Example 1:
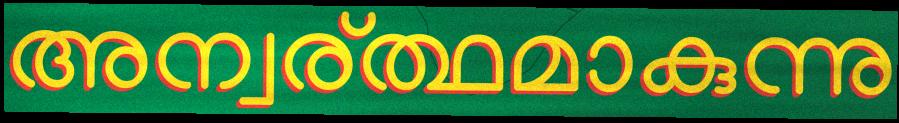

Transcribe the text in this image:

അന്വര്ത്ഥമാകുന്നു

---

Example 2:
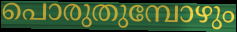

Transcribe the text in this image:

പൊരുതുമ്പോഴും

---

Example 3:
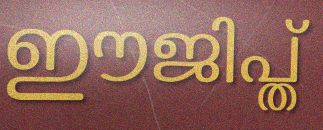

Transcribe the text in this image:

ഈജിപ്ത്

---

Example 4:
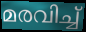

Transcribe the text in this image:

മരവിച്ച്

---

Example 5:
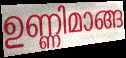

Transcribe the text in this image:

ഉണ്ണിമാങ്ങ